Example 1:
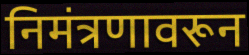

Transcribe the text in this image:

निमंत्रणावरून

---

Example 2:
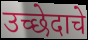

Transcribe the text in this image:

उच्छेदाचे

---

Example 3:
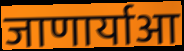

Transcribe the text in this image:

जाणार्याआ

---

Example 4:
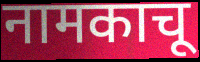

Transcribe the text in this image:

नामकाचू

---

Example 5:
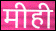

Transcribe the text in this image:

मीही